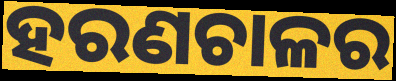
ହରଣଚାଳର